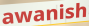
awanish